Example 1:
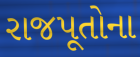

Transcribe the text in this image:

રાજપૂતોના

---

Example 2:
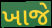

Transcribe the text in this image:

ખાજે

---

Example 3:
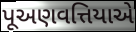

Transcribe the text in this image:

પૂઅણવત્તિયાએ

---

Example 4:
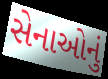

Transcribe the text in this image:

સેનાઓનું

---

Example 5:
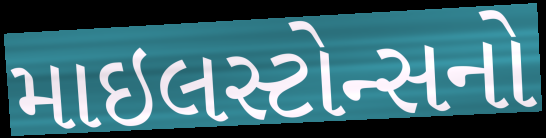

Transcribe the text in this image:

માઇલસ્ટોન્સનો